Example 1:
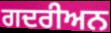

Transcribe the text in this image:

ਗਦਰੀਅਨ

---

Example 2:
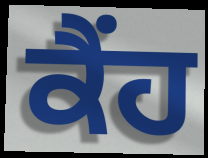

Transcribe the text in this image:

ਕੈਂਹ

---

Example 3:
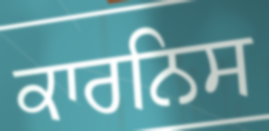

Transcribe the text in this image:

ਕਾਰਨਿਸ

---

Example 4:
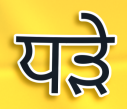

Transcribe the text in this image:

ਧੜੇ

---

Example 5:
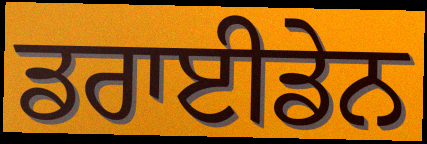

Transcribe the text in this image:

ਡਰਾਈਡੇਨ